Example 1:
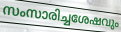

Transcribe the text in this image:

സംസാരിച്ചശേഷവും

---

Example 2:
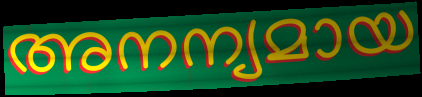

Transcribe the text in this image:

അനന്യമായ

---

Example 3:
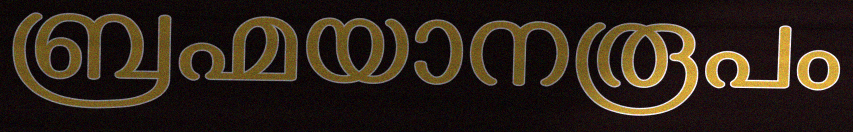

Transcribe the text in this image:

ബ്രഹ്മയാനരൂപം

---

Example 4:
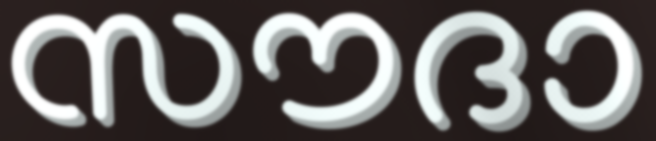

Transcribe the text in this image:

സൗദാ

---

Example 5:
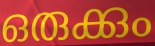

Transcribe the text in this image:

ഒരുക്കും